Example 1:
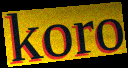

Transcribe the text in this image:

koro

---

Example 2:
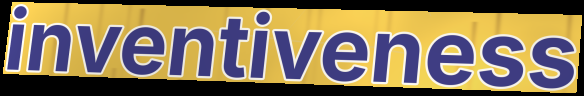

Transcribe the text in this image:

inventiveness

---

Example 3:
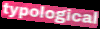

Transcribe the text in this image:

typological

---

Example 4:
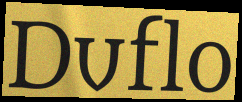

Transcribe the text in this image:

Duflo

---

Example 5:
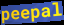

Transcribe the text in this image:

peepal